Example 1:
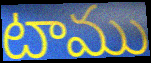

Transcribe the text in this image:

టాము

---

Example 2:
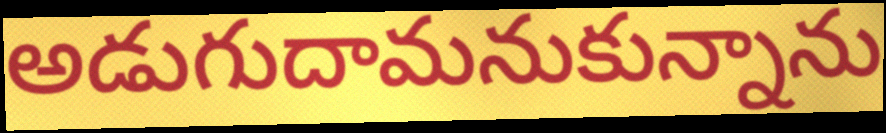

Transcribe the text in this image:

అడుగుదామనుకున్నాను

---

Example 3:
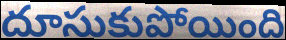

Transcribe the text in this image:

దూసుకుపోయింది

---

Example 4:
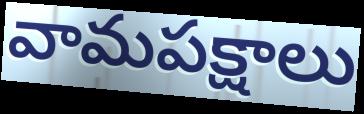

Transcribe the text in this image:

వామపక్షాలు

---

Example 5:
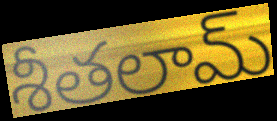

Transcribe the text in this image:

శీతలామ్